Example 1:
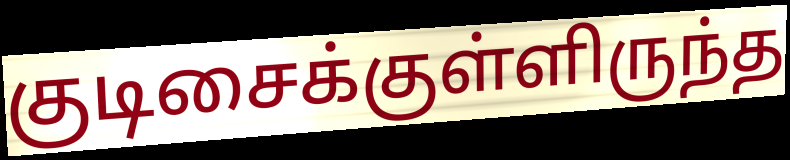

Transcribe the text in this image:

குடிசைக்குள்ளிருந்த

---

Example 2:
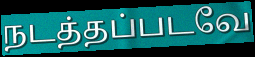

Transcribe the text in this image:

நடத்தப்படவே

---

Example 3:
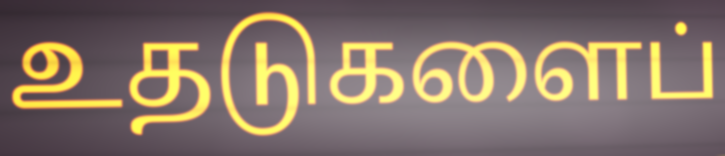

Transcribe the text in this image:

உதடுகளைப்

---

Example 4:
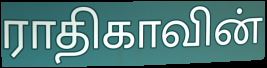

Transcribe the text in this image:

ராதிகாவின்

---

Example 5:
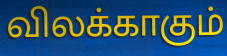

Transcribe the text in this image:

விலக்காகும்